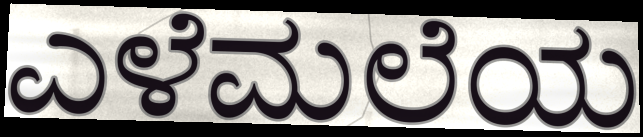
ಎಳೆಮಲೆಯ